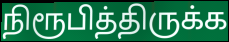
நிரூபித்திருக்க